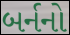
બર્નનો